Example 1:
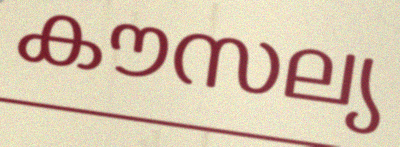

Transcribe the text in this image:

കൗസല്യ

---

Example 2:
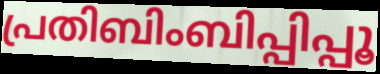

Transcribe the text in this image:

പ്രതിബിംബിപ്പിപ്പൂ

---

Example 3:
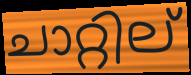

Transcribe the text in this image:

ചാറ്റില്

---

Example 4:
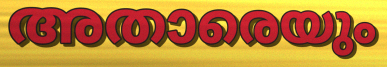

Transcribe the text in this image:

അതാരെയും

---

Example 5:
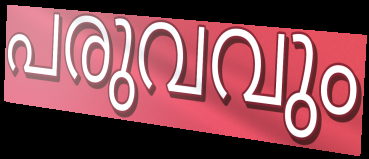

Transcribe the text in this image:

പരുവവും